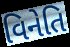
વિનેતિ